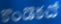
కొండొకచో